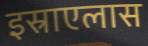
इस्राएलास